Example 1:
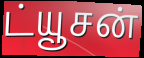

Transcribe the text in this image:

ட்யூசன்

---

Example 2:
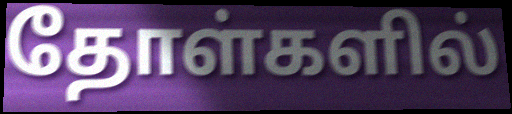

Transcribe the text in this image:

தோள்களில்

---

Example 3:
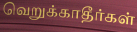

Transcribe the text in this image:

வெறுக்காதீர்கள்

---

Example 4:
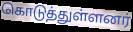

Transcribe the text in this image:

கொடுத்துள்ளனர்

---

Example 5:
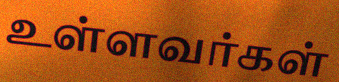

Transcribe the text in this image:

உள்ளவர்கள்